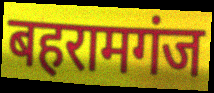
बहरामगंज